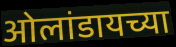
ओलांडायच्या